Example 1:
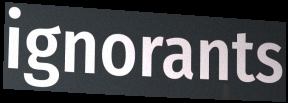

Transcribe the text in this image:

ignorants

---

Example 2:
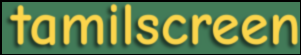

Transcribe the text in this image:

tamilscreen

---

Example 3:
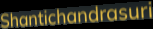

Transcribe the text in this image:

Shantichandrasuri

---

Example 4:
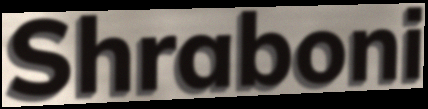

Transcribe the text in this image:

Shraboni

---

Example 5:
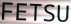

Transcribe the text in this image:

FETSU